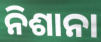
ନିଶାନା